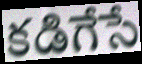
కడిగేసే